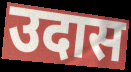
उदास